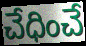
చేధించే